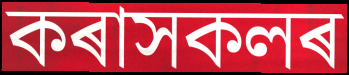
কৰাসকলৰ